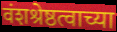
वंशश्रेष्ठत्वाच्या